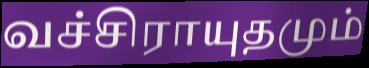
வச்சிராயுதமும்